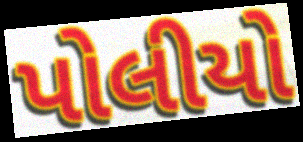
પોલીયો